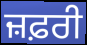
ਜ਼ਫ਼ਰੀ